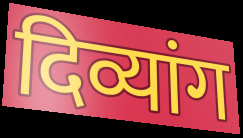
दिव्यांग